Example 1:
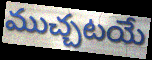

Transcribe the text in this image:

ముచ్చటయే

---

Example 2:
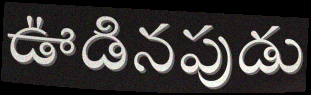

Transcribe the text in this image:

ఊడినపుడు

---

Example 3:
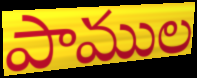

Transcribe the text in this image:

పాముల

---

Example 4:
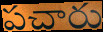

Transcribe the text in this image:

పచారు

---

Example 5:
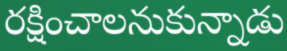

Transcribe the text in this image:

రక్షించాలనుకున్నాడు